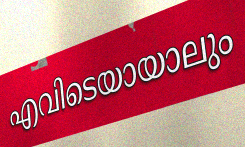
എവിടെയായാലും